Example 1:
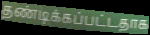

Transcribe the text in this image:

தண்டிக்கப்பட்டதாக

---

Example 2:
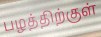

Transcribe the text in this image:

பழத்திற்குள்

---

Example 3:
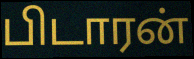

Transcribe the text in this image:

பிடாரன்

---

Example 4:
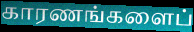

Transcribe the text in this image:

காரணங்களைப்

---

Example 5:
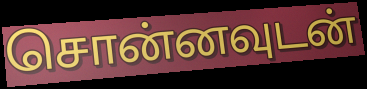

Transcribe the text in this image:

சொன்னவுடன்